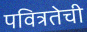
पवित्रतेची